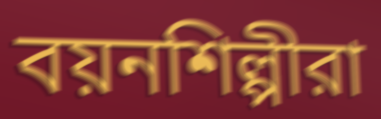
বয়নশিল্পীরা